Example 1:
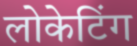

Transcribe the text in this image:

लोकेटिंग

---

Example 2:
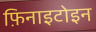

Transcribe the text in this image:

फ़िनाइटोइन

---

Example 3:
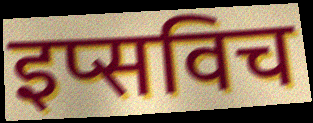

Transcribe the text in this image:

इप्सविच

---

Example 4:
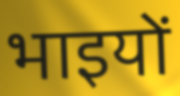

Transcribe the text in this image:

भाइयों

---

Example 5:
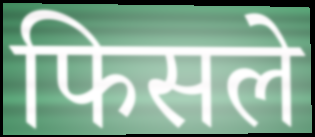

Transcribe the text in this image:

फिसले